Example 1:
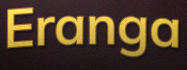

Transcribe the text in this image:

Eranga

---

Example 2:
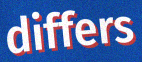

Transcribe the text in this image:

differs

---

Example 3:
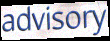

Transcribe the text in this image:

advisory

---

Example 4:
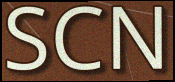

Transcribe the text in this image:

SCN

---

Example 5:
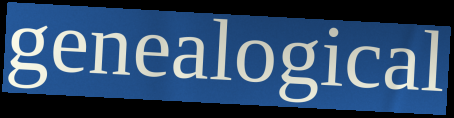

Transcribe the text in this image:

genealogical